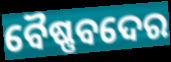
ବୈଷ୍ଣବଦେର